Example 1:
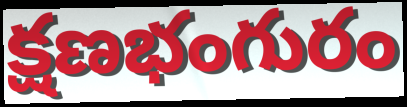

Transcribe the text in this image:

క్షణభంగురం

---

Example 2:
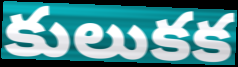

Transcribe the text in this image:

కులుకక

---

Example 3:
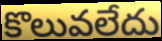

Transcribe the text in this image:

కొలువలేదు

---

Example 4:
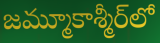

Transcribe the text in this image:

జమ్మూకాశ్మీర్‌లో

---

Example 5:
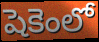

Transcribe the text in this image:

షెకెంలో